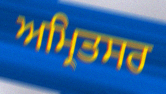
ਅਮ੍ਰਿਤਸਰ